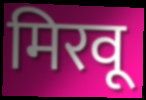
मिरवू